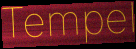
Tempel